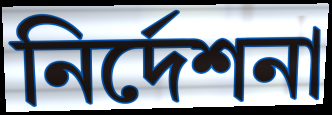
নির্দেশনা